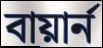
বায়ার্ন